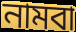
নামবা